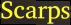
Scarps